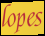
lopes